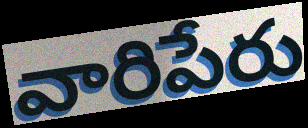
వారిపేరు